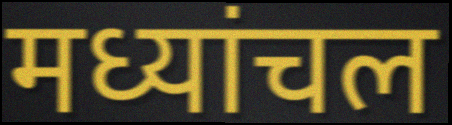
मध्यांचल